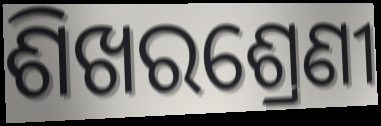
ଶିଖରଶ୍ରେଣୀ